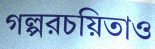
গল্পরচয়িতাও